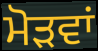
ਮੋੜਵਾਂ